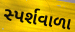
સ્પર્શવાળા